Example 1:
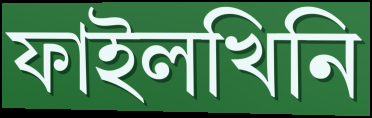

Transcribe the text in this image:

ফাইলখিনি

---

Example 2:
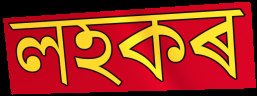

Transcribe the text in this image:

লহকৰ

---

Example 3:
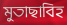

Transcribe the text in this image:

মুতাছাবিহ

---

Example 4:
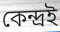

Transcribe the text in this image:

কেন্দ্ৰই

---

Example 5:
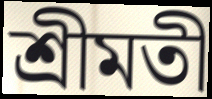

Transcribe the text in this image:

শ্ৰীমতী